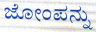
ಜೋಂಪನ್ನು